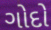
ગોદો